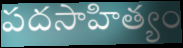
పదసాహిత్యం